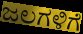
ಜಲಗಳಿಗೆ